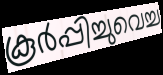
കൂർപ്പിച്ചുവെച്ച